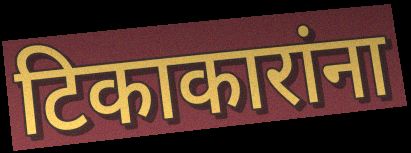
टिकाकारांना